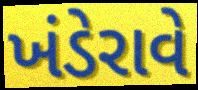
ખંડેરાવે